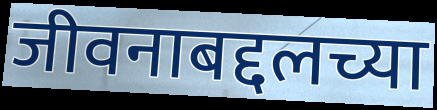
जीवनाबद्दलच्या